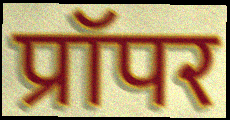
प्रॉपर